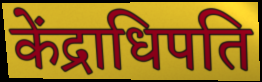
केंद्राधिपति